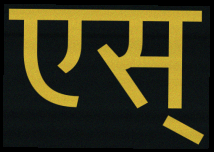
एस्